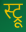
स्ट्रू